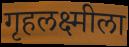
गृहलक्ष्मीला